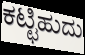
ಕಟ್ಟಿಹುದು